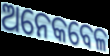
ଅନେକବେଳ